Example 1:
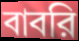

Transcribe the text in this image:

বাবরি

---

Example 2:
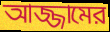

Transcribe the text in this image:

আজ্জামের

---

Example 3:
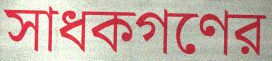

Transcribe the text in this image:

সাধকগণের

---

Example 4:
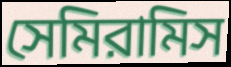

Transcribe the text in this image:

সেমিরামিস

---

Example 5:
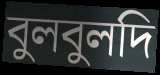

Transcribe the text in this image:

বুলবুলদি